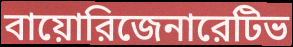
বায়োরিজেনারেটিভ